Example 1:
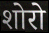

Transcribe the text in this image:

शोरो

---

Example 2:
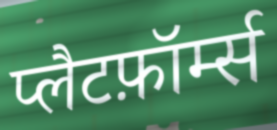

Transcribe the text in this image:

प्लैटफ़ॉर्म्स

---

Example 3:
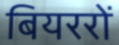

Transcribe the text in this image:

बियररों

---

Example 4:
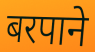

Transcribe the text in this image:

बरपाने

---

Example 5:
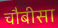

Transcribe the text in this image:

चौबीसा